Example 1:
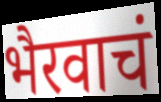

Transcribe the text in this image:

भैरवाचं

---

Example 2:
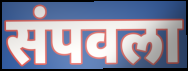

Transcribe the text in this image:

संपवला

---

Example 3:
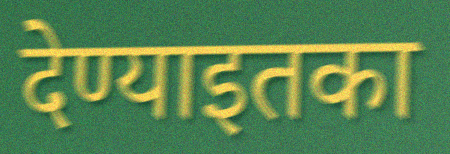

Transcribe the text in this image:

देण्याइतका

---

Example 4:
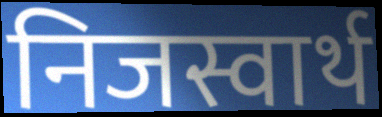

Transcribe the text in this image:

निजस्वार्थ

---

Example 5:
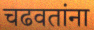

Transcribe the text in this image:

चढवतांना